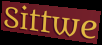
Sittwe